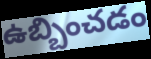
ఉబ్బించడం